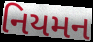
નિયમન